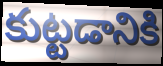
కుట్టడానికి